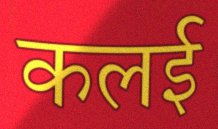
कलई